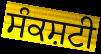
ਸੰਕਸ਼ਟੀ